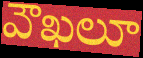
వౌఖలూ